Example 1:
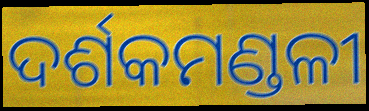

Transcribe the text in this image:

ଦର୍ଶକମଣ୍ଡଳୀ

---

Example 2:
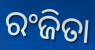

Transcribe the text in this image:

ରଂଜିତା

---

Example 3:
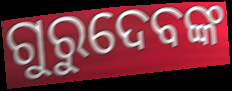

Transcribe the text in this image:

ଗୁରୁଦେବଙ୍କ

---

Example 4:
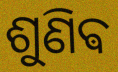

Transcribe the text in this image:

ଶୁଣିଵ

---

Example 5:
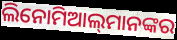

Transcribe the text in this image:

ଲିନୋମିଆଲ୍‌ମାନଙ୍କର